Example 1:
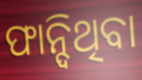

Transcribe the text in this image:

ଫାନ୍ଦିଥିବା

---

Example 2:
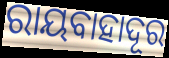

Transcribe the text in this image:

ରାୟବାହାଦୂର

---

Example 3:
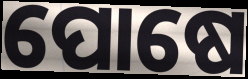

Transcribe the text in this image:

ପୋଷେ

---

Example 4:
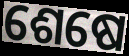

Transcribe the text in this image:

ଶେଷେ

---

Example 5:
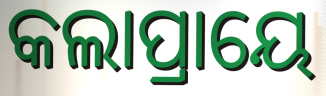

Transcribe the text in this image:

କଲାପ୍ରାୟେ